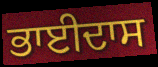
ਭਾਈਦਾਸ